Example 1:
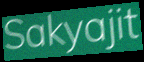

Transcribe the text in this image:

Sakyajit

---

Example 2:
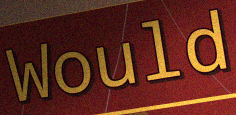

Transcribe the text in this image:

Would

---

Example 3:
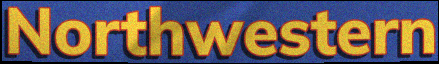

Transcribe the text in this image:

Northwestern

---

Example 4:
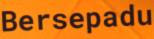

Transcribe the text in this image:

Bersepadu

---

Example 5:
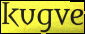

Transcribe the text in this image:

kugve